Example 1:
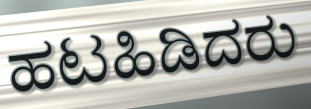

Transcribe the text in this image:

ಹಟಹಿಡಿದರು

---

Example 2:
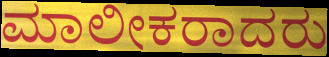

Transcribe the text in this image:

ಮಾಲೀಕರಾದರು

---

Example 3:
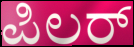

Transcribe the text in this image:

ಪಿಲರ್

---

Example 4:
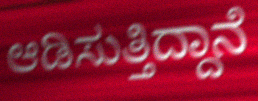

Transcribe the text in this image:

ಆಡಿಸುತ್ತಿದ್ದಾನೆ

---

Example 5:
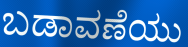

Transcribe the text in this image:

ಬಡಾವಣೆಯು